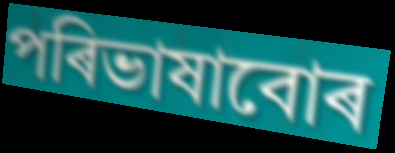
পৰিভাষাবোৰ